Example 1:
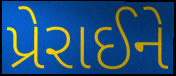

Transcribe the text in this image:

પ્રેરાઈને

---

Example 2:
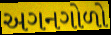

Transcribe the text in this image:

અગનગોળો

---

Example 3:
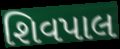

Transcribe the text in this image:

શિવપાલ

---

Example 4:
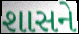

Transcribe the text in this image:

શાસને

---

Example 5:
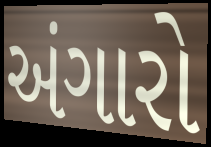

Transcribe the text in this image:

અંગારો